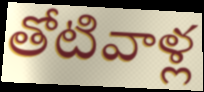
తోటివాళ్ల